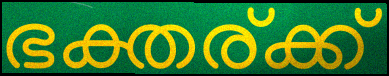
ഭക്തര്ക്ക്